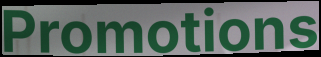
Promotions